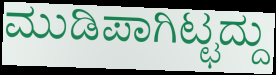
ಮುಡಿಪಾಗಿಟ್ಟದ್ದು